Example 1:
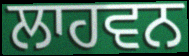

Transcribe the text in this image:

ਲਾਹਵਨ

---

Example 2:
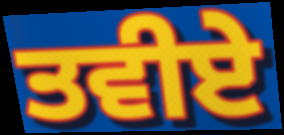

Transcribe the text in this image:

ਤਵੀਏ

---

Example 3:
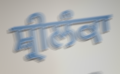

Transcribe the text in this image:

ਸ਼੍ਰ੍ਰੀਲੰਕਾ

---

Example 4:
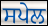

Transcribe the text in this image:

ਸਪੇਲ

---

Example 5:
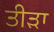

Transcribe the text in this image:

ਤੀੜਾ